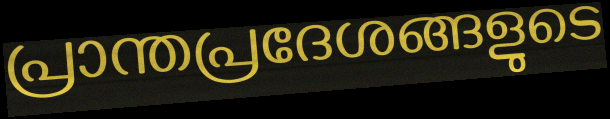
പ്രാന്തപ്രദേശങ്ങളുടെ